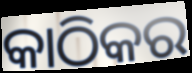
କାଠିକର